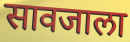
सावजाला